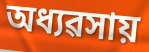
অধ্যৱসায়